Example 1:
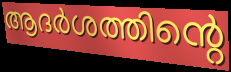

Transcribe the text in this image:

ആദർശത്തിന്റെ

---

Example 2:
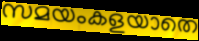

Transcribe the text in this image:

സമയംകളയാതെ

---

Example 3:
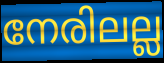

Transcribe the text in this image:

നേരിലല്ല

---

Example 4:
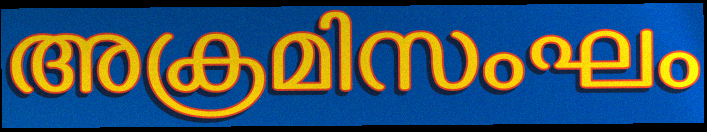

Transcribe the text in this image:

അക്രമിസംഘം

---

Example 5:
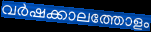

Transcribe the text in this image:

വർഷക്കാലത്തോളം